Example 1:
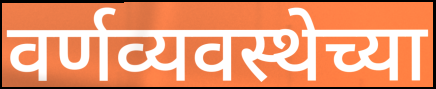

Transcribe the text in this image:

वर्णव्यवस्थेच्या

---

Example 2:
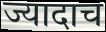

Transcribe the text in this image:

ज्यादाच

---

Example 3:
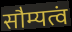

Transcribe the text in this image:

सौम्यत्वं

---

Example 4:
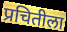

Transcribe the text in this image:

प्रचितीला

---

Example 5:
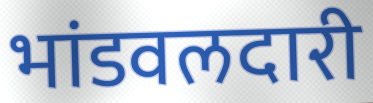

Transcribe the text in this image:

भांडवलदारी